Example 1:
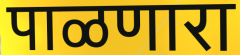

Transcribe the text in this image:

पाळणारा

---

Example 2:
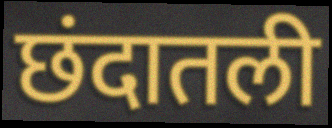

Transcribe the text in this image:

छंदातली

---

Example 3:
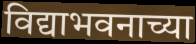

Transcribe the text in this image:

विद्याभवनाच्या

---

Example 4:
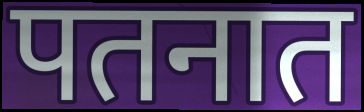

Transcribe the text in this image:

पतनात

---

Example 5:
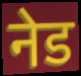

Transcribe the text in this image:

नेड